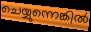
ചെയ്യുന്നെങ്കിൽ